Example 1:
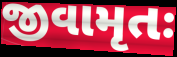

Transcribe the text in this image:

જીવામૃતઃ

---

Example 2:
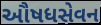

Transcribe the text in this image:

ઔષધસેવન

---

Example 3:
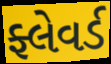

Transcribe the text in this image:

ફ્લેવર્ડ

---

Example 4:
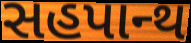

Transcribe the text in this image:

સહપાન્થ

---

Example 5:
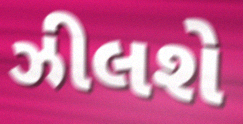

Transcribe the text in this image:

ઝીલશે